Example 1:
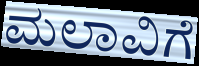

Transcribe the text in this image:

ಮಲಾವಿಗೆ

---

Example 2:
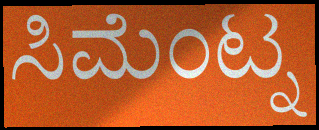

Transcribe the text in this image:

ಸಿಮೆಂಟ್ನ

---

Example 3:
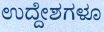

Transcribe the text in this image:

ಉದ್ದೇಶಗಳೂ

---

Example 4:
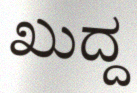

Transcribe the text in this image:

ಖುದ್ದ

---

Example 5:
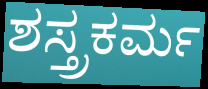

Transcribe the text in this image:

ಶಸ್ತ್ರಕರ್ಮ